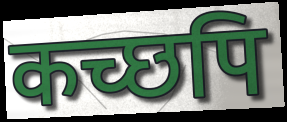
कच्छपि